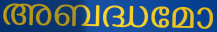
അബദ്ധമോ